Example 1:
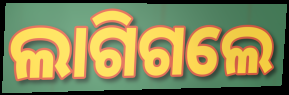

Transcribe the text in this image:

ଲାଗିଗଲେ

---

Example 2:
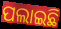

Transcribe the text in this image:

ପଲାଇଛି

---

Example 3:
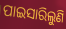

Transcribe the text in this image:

ପାଇସାରିଲୁଣି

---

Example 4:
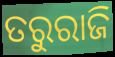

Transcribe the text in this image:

ତରୁରାଜି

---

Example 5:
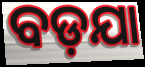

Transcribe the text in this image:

ବଡ଼ଯା